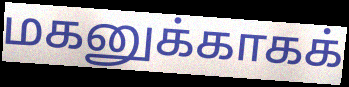
மகனுக்காகக்